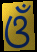
ଓଁ